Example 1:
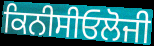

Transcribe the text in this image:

ਕਿਨੀਸੀਓਲੋਜੀ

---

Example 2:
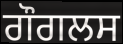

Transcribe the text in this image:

ਗੌਗਲਸ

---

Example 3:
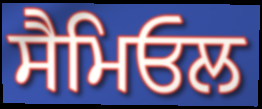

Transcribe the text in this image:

ਸੈਮਿਓਲ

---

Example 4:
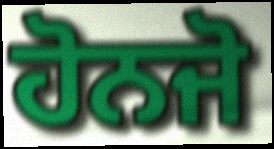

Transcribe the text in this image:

ਹੋਨਜੋ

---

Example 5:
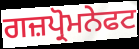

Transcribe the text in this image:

ਗਜ਼ਪ੍ਰੋਮਨੇਫਟ